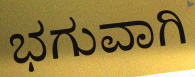
ಭಗುವಾಗಿ